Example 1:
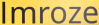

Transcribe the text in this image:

Imroze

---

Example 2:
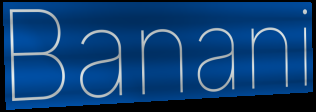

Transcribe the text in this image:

Banani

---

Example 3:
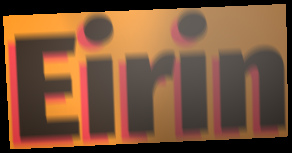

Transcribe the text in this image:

Eirin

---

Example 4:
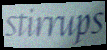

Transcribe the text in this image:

stirrups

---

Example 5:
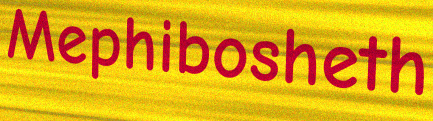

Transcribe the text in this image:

Mephibosheth